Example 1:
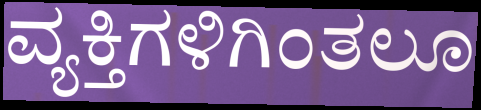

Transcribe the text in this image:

ವ್ಯಕ್ತಿಗಳಿಗಿಂತಲೂ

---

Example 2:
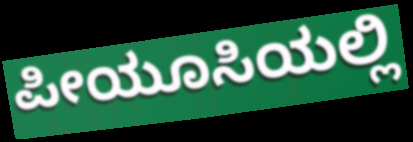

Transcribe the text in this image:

ಪೀಯೂಸಿಯಲ್ಲಿ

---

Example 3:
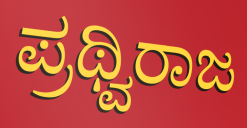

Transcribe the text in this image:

ಪ್ರಥ್ವಿರಾಜ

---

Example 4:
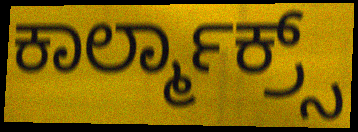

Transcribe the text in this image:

ಕಾರ್ಲ್ಮಾಕ್ರ್ಸ್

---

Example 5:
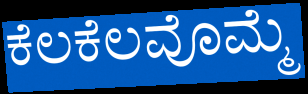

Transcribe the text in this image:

ಕೆಲಕೆಲವೊಮ್ಮೆ